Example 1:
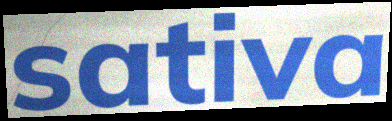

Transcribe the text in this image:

sativa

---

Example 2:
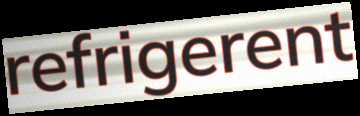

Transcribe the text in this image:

refrigerent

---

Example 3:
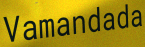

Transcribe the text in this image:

Vamandada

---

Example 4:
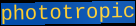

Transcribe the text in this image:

phototropic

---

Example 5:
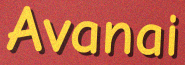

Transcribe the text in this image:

Avanai